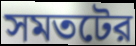
সমতটের